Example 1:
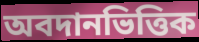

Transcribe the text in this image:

অবদানভিত্তিক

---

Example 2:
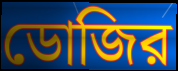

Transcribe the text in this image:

ডোজির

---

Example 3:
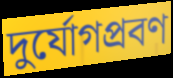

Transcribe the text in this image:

দুর্যোগপ্রবণ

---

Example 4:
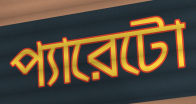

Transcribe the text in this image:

প্যারেটো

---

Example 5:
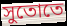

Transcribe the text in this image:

সুতোতে